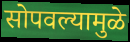
सोपवल्यामुळे